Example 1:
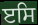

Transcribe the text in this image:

ੲਸਿ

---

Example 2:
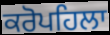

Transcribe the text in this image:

ਕਰੋਪਹਿਲਾ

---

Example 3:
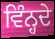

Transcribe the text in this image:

ਵਿੰਨ੍ਹਦੇ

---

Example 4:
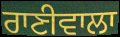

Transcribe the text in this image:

ਰਾਣੀਵਾਲਾ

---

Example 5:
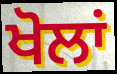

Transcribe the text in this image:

ਖੋਲਾਂ